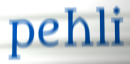
pehli